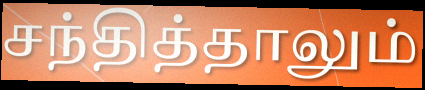
சந்தித்தாலும்